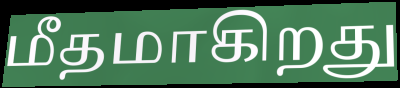
மீதமாகிறது